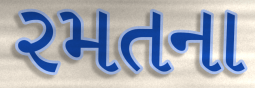
રમતના